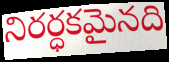
నిరర్ధకమైనది